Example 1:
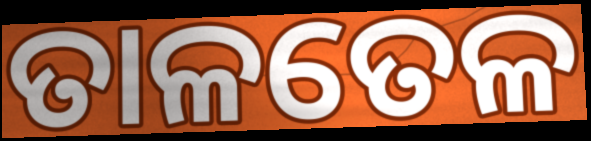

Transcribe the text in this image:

ତାଳତେଳ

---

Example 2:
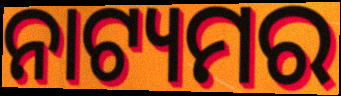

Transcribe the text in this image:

ନାଟ୍ୟମର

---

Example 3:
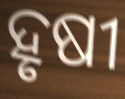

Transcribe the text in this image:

ହୃଷୀ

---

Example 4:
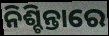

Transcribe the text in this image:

ନିଶ୍ଚିନ୍ତାରେ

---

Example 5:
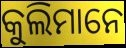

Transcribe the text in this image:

କୁଲିମାନେ